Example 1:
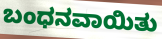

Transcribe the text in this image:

ಬಂಧನವಾಯಿತು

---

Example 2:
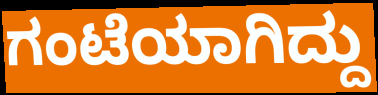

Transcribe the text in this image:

ಗಂಟೆಯಾಗಿದ್ದು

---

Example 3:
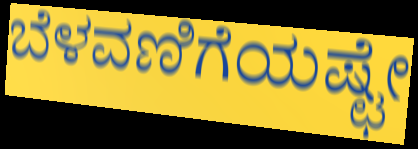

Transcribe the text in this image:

ಬೆಳವಣಿಗೆಯಷ್ಟೇ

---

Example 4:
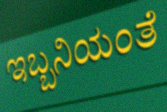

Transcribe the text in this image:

ಇಬ್ಬನಿಯಂತೆ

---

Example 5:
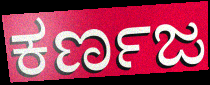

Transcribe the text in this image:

ಕರ್ಣಜ